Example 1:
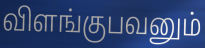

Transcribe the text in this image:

விளங்குபவனும்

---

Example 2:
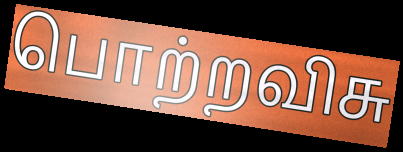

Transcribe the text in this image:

பொற்றவிசு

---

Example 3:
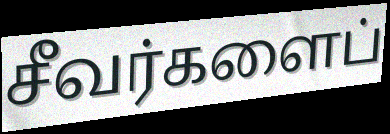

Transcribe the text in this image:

சீவர்களைப்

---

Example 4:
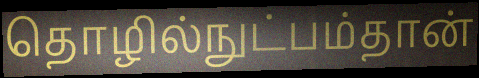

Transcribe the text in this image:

தொழில்நுட்பம்தான்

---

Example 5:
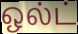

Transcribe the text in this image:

ஒல்ட்